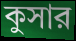
কুসার